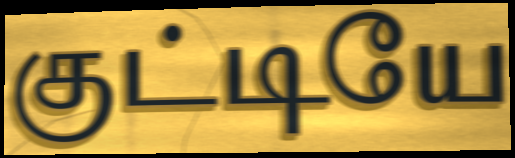
குட்டியே